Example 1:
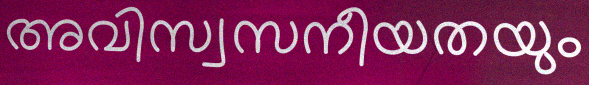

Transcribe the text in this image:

അവിസ്വസനീയതയും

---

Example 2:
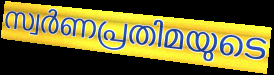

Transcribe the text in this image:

സ്വർണപ്രതിമയുടെ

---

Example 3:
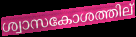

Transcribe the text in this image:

ശ്വാസകോശത്തില്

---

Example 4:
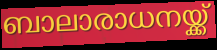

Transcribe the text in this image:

ബാലാരാധനയ്ക്ക്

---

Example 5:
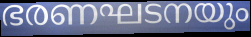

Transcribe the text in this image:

ഭരണഘടനയും